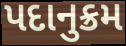
પદાનુક્રમ